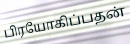
பிரயோகிப்பதன்